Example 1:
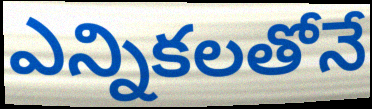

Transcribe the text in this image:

ఎన్నికలతోనే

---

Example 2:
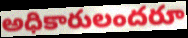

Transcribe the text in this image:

అధికారులందరూ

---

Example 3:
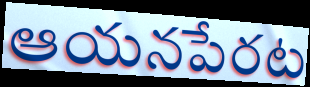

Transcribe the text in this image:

ఆయనపేరట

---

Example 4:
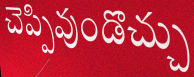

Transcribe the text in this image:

చెప్పివుండొచ్చు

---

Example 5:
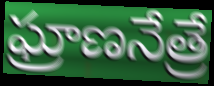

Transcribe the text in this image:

ఘ్రాణనేత్రే